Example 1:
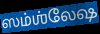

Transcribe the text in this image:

ஸம்ஶ்லேஷ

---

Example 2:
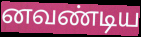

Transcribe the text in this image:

னவண்டிய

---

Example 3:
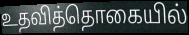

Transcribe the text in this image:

உதவித்தொகையில்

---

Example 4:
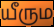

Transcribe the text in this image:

யீரும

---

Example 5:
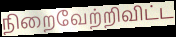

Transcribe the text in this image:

நிறைவேற்றிவிட்ட